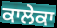
ਕਾਲੇਕਾ